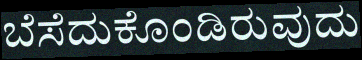
ಬೆಸೆದುಕೊಂಡಿರುವುದು